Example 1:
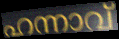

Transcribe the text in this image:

ഹന്നാവ്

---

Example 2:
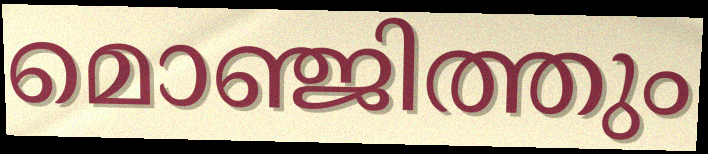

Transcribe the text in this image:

മൊഞ്ജിത്തും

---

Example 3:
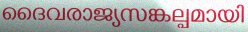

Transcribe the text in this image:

ദൈവരാജ്യസങ്കല്പമായി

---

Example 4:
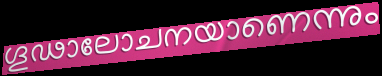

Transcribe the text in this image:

ഗൂഢാലോചനയാണെന്നും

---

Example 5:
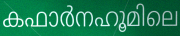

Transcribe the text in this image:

കഫാർനഹൂമിലെ